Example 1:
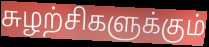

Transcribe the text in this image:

சுழற்சிகளுக்கும்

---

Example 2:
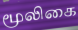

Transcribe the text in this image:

மூலிகை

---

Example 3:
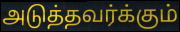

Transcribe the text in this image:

அடுத்தவர்க்கும்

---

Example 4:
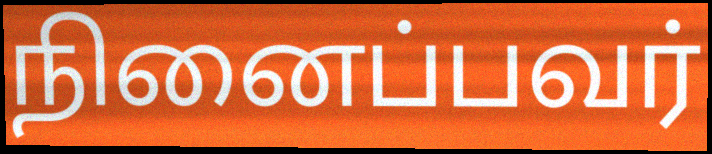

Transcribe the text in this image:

நினைப்பவர்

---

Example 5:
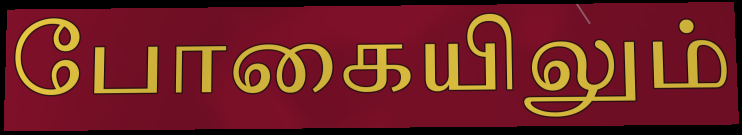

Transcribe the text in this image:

போகையிலும்